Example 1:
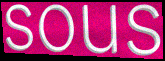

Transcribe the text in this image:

sous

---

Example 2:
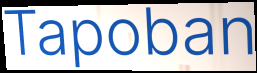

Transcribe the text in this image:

Tapoban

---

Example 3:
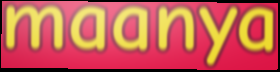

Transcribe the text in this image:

maanya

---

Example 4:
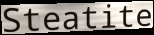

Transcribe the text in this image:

Steatite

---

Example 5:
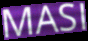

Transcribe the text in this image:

MASI